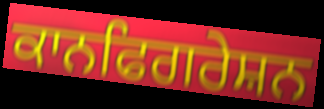
ਕਾਨਫਿਗਰੇਸ਼ਨ